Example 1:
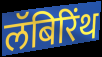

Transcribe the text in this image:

लॅबिरिंथ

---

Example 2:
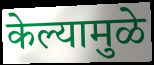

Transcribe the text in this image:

केल्यामुळे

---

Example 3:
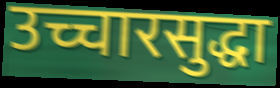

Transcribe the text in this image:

उच्चारसुद्धा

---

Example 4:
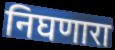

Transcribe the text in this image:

निघणारा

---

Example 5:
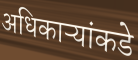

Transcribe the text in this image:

अधिकाऱ्यांकडे